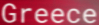
Greece